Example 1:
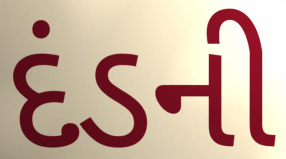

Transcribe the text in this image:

દંડની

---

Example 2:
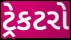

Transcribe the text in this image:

ટ્રેકટરો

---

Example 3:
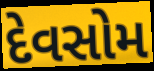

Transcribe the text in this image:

દેવસોમ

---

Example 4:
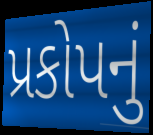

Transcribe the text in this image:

પ્રકોપનું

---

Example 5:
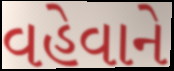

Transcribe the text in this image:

વહેવાને